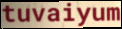
tuvaiyum